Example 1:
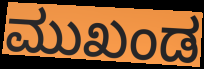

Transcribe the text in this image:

ಮುಖಂಡ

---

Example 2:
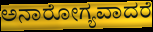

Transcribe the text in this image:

ಅನಾರೋಗ್ಯವಾದರೆ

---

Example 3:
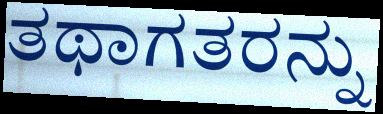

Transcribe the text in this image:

ತಥಾಗತರನ್ನು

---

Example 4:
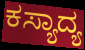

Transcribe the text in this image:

ಕಸ್ಯಾದ್ಯ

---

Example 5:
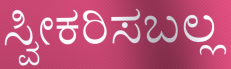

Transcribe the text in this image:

ಸ್ವೀಕರಿಸಬಲ್ಲ